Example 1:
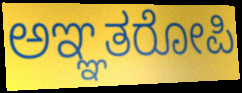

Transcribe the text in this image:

ಅಞ್ಞತರೋಪಿ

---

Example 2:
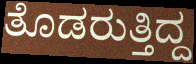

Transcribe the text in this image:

ತೊಡರುತ್ತಿದ್ದ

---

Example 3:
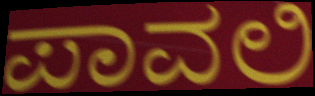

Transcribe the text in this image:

ಪಾವಲಿ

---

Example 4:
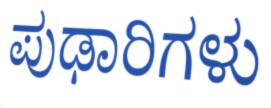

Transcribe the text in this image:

ಪುಢಾರಿಗಳು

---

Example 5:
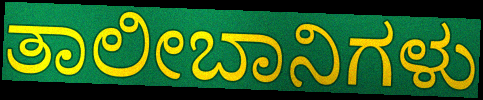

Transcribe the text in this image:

ತಾಲೀಬಾನಿಗಳು